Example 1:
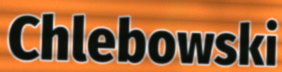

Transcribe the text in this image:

Chlebowski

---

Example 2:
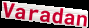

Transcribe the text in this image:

Varadan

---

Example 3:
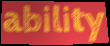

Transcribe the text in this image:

ability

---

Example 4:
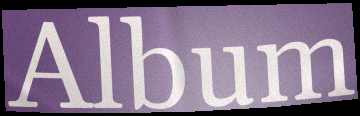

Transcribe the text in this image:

Album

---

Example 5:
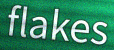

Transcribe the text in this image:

flakes